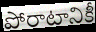
పోరాటానికీ